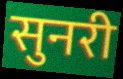
सुनरी